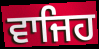
ਵਾਜਿਹ